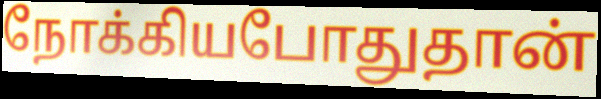
நோக்கியபோதுதான்